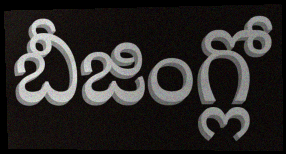
బీజింగ్లో